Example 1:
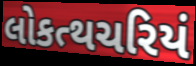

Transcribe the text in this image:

લોકત્થચરિયં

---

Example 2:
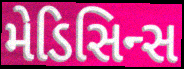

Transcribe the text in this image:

મેડિસિન્સ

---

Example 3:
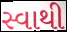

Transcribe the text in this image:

સ્વાથી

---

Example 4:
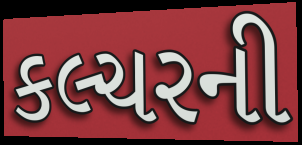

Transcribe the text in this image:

કલ્ચરની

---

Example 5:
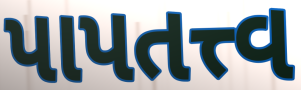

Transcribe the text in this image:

પાપતત્ત્વ